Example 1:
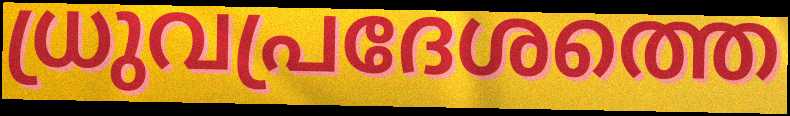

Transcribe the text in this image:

ധ്രുവപ്രദേശത്തെ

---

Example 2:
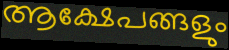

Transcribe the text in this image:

ആക്ഷേപങ്ങളും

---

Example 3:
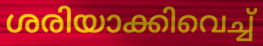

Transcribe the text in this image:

ശരിയാക്കിവെച്ച്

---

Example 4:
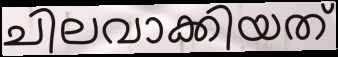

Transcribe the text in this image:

ചിലവാക്കിയത്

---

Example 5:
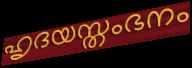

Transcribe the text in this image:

ഹൃദയസ്തംഭനം